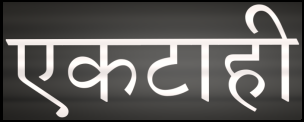
एकटाही